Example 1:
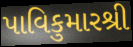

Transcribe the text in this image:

પાવિકુમારશ્રી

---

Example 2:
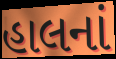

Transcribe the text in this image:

હાલનાં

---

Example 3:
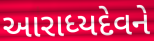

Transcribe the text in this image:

આરાધ્યદેવને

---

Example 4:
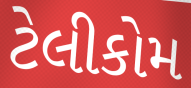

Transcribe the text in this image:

ટેલીકોમ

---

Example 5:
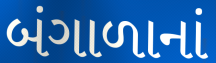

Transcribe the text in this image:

બંગાળાનાં